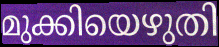
മുക്കിയെഴുതി